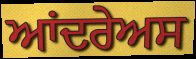
ਆਂਦਰੇਅਸ